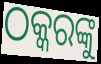
ଠକ୍କରଙ୍କୁ